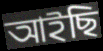
আইছি